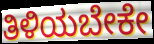
ತಿಳಿಯಬೇಕೇ